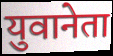
युवानेता